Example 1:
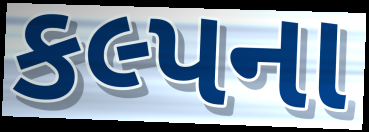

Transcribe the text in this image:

કલ્પના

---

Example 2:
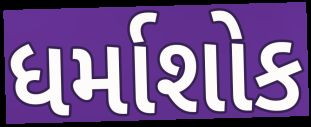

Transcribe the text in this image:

ધર્માશોક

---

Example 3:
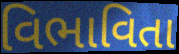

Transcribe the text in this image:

વિભાવિતા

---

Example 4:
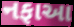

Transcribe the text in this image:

નફાઆ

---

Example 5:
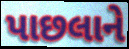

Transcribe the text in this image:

પાછલાને